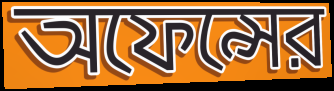
অফেন্সের